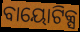
ବାୟୋଟିକ୍ସ